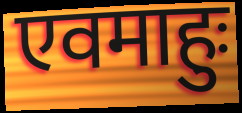
एवमाहुः